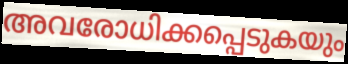
അവരോധിക്കപ്പെടുകയും